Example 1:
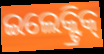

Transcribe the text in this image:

ଇଲେକ୍ଟ୍ରିକ୍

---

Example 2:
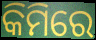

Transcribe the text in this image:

କିମିରେ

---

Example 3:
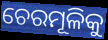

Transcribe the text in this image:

ଚେରମୂଳିକୁ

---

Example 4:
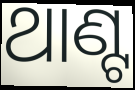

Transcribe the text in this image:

ଥାଣ୍ଟ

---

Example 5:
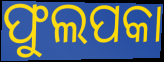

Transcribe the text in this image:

ଫୁଲପକା